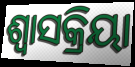
ଶ୍ବାସକ୍ରିୟା